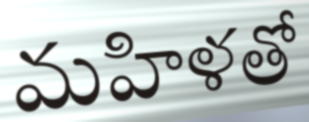
మహిళతో